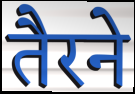
तैरने